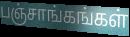
பஞ்சாங்கங்கள்